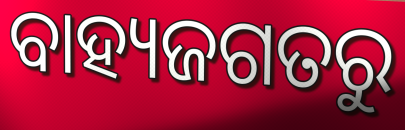
ବାହ୍ୟଜଗତରୁ